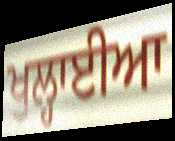
ਖੁਲ੍ਹਾਈਆ